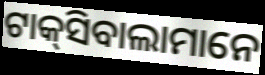
ଟାକ୍‌ସିବାଲାମାନେ